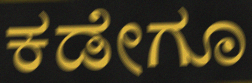
ಕಡೇಗೂ